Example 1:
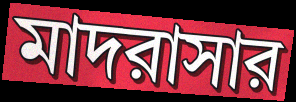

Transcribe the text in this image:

মাদরাসার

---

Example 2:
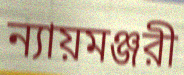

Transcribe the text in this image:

ন্যায়মঞ্জরী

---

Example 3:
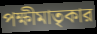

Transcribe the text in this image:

পক্ষীমাতৃকার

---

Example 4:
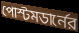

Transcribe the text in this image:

পোস্টমডার্নের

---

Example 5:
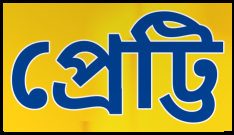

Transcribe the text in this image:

প্রেট্টি